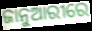
ଜାନୁଆରୀରେ